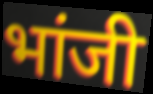
भांजी